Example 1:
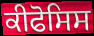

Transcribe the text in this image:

ਕੀਫੋਸਿਸ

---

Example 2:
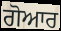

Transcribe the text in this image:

ਗੋਆਰ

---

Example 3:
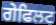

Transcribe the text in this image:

ਗੇਫਿਲਟ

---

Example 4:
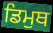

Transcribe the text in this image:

ਡਿਮੁਥ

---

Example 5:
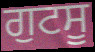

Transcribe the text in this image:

ਗੁਟਸੂ